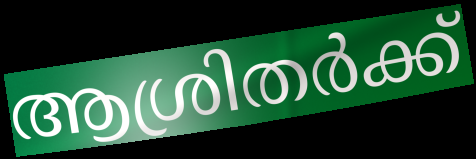
ആശ്രിതർക്ക്